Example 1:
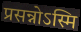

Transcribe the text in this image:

प्रसन्नोऽस्मि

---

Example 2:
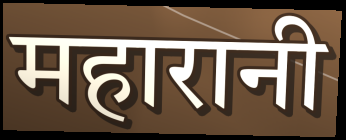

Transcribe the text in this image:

महारानी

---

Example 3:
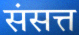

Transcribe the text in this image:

संसत्त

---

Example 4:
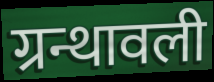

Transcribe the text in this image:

ग्रन्थावली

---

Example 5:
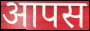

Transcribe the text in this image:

आपस